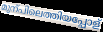
മുന്പിലെത്തിയപ്പോള്